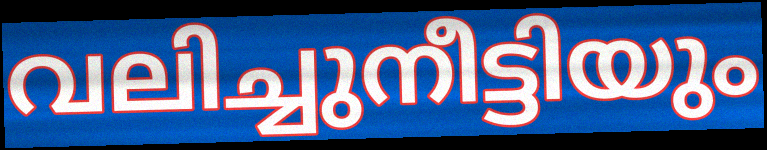
വലിച്ചുനീട്ടിയും